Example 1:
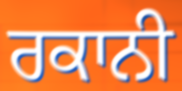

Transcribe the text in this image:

ਰਕਾਨੀ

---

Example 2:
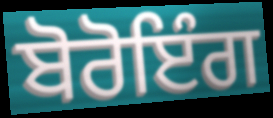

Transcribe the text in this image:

ਬੋਰੋਇੰਗ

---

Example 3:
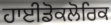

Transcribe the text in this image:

ਹਾਈਡੋਕਲੋਰਿਕ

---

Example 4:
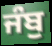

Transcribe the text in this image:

ਜੰਬੁ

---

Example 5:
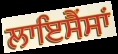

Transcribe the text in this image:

ਲਾਇਸੈਂਸਾਂ